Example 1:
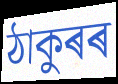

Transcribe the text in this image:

ঠাকুৰৰ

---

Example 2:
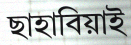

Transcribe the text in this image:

ছাহাবিয়াই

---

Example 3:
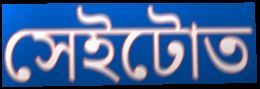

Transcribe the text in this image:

সেইটোত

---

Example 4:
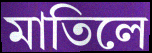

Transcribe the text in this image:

মাতিলে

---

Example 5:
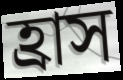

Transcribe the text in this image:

হ্ৰাস